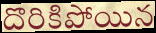
దొరికిపోయిన